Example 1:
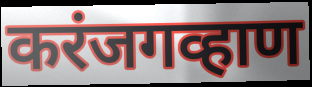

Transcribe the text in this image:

करंजगव्हाण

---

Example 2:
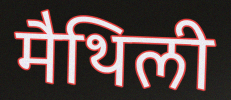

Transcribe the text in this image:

मैथिली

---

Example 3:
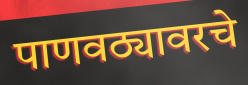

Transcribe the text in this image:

पाणवठ्यावरचे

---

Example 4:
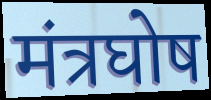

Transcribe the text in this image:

मंत्रघोष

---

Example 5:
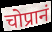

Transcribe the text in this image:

चोप्रानं